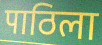
पाठिला